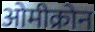
ओमीक्रोन